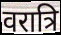
वरात्रि